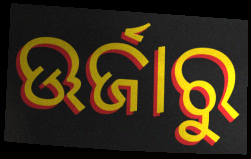
ଊର୍ଜାରୁ